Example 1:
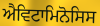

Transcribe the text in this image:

ਐਵਿਟਾਮਿਨੋਸਿਸ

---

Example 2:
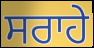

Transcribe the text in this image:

ਸਰਾਹੇ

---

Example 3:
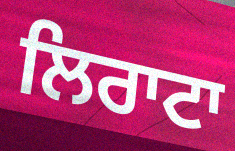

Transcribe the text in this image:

ਲਿਰਾਟਾ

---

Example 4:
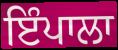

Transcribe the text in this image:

ਇੰਪਾਲਾ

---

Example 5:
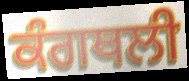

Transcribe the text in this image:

ਕੰਗਥਲੀ